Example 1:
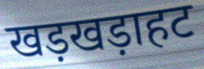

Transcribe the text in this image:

खड़खड़ाहट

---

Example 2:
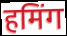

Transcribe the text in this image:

हमिंग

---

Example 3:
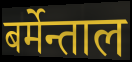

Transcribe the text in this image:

बर्मेन्ताल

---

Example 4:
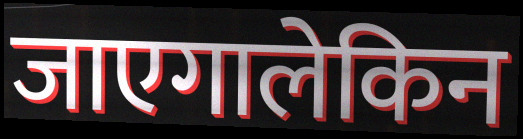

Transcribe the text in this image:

जाएगालेकिन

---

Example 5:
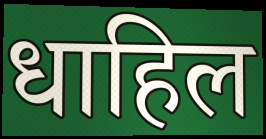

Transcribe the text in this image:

धाहिल